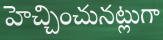
హెచ్చించునట్లుగా